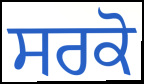
ਸਰਕੋ